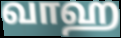
வாஹ